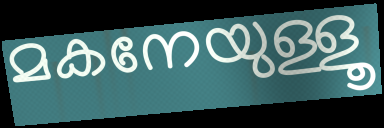
മകനേയുള്ളൂ